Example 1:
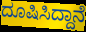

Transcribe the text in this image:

ದೂಷಿಸಿದ್ದಾನೆ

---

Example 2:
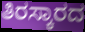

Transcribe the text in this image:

ತಿರಸ್ಕಾರದ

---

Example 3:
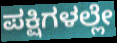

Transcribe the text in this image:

ಪಕ್ಷಿಗಳಲ್ಲೇ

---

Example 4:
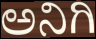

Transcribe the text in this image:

ಅನಿಗಿ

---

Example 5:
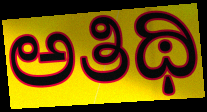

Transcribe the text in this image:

ಅತಿಥಿ